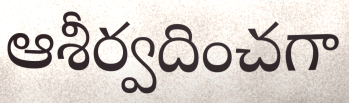
ఆశీర్వదించగా